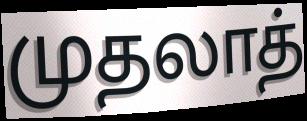
முதலாத்